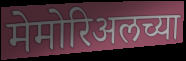
मेमोरिअलच्या